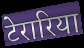
टेरारिया